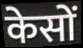
केसों